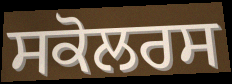
ਸਕੋਲਰਸ